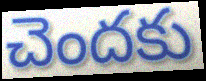
చెందకు